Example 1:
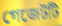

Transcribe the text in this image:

গেজেটটি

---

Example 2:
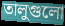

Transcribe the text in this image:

তালুগুলো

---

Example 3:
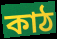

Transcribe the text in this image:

কাঠ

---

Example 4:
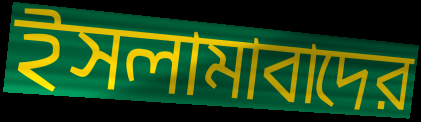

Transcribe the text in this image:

ইসলামাবাদের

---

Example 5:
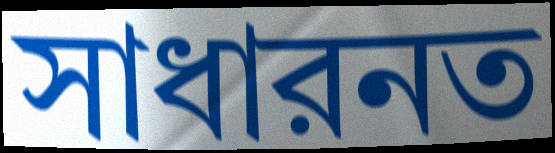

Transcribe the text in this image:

সাধারনত